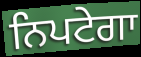
ਨਿਪਟੇਗਾ